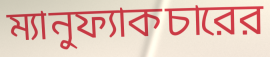
ম্যানুফ্যাকচারের